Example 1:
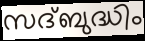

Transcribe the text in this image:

സദ്ബുദ്ധിം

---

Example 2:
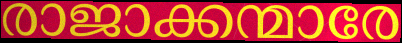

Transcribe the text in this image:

രാജാക്കന്മാരേ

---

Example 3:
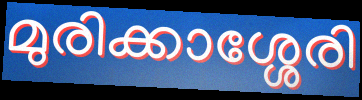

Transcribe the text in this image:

മുരിക്കാശ്ശേരി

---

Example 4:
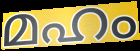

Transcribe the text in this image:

മഹം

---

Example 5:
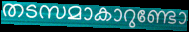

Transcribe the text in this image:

തടസമാകാറുണ്ടോ